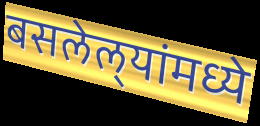
बसलेल्यांमध्ये